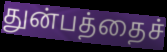
துன்பத்தைச்